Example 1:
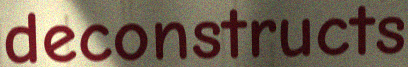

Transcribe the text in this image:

deconstructs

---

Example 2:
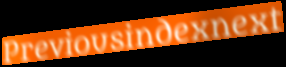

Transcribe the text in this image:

Previousindexnext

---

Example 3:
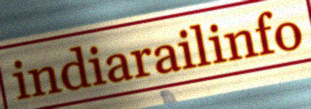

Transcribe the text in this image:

indiarailinfo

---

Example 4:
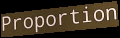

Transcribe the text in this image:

Proportion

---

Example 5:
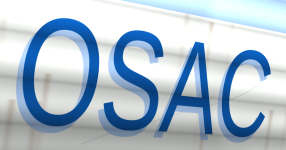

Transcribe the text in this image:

OSAC